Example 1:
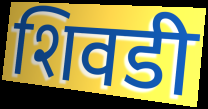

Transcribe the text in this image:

शिवडी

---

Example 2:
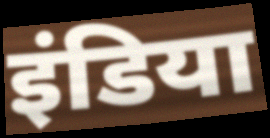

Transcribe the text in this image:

इंडिया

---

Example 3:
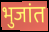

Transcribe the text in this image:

भुजांत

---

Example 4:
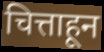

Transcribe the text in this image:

चित्ताहून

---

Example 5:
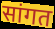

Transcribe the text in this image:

सांगत